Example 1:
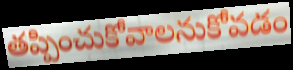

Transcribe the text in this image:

తప్పించుకోవాలనుకోవడం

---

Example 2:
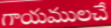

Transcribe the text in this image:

గాయములచే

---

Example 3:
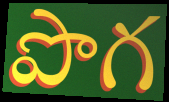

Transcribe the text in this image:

పొగ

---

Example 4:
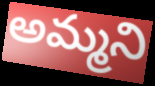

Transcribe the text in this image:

అమ్మని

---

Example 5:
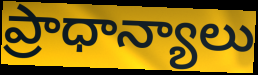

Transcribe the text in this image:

ప్రాధాన్యాలు